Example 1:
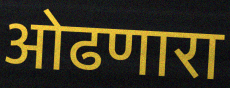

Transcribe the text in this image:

ओढणारा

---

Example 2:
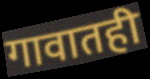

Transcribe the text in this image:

गावातही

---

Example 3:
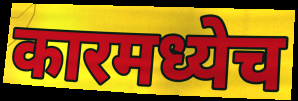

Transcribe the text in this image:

कारमध्येच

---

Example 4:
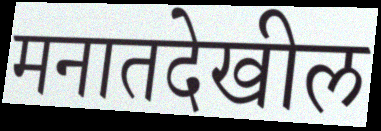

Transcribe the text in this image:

मनातदेखील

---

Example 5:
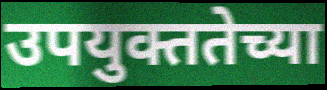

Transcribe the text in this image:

उपयुक्ततेच्या